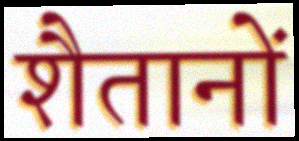
शैतानों